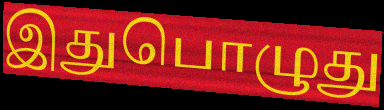
இதுபொழுது